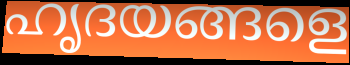
ഹൃദയങ്ങളെ